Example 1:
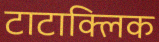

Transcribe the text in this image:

टाटाक्लिक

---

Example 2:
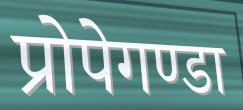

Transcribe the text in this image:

प्रोपेगण्डा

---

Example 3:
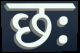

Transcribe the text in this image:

छः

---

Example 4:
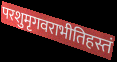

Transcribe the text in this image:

परशुमृगवराभीतिहस्तं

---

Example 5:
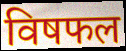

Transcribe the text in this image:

विषफल